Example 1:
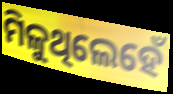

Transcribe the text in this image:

ମିଳୁଥିଲେହେଁ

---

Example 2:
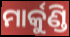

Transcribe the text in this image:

ମାର୍କୁଣ୍ଡି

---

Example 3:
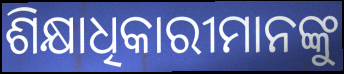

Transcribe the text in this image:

ଶିକ୍ଷାଧିକାରୀମାନଙ୍କୁ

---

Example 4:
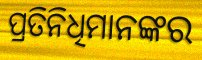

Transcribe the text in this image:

ପ୍ରତିନିଧିମାନଙ୍କର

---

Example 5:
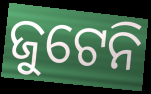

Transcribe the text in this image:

ଜୁଟେନି